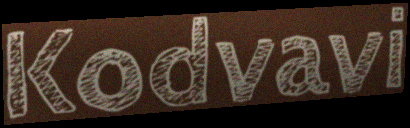
Kodvavi